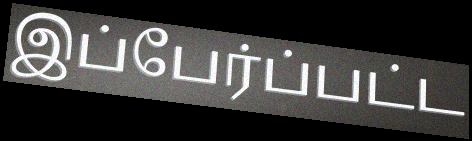
இப்பேர்ப்பட்ட